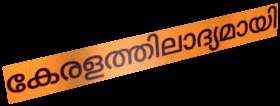
കേരളത്തിലാദ്യമായി